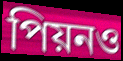
পিয়নও